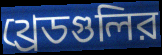
থ্রেডগুলির